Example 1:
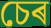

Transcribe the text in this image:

চেৰ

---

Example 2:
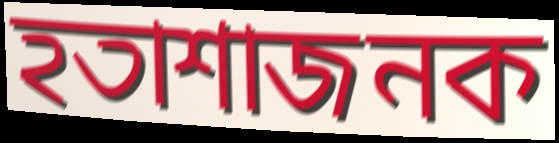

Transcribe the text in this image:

হতাশাজনক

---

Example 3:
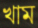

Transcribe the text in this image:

খাম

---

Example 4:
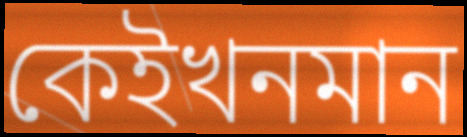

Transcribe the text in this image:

কেইখনমান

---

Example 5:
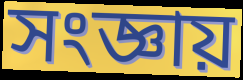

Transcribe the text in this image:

সংজ্ঞায়